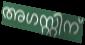
അഗസ്റ്റിന്